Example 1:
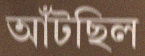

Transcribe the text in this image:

আঁটছিল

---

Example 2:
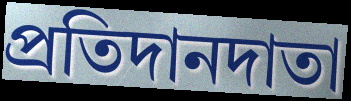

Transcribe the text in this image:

প্রতিদানদাতা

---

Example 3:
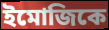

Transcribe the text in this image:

ইমোজিকে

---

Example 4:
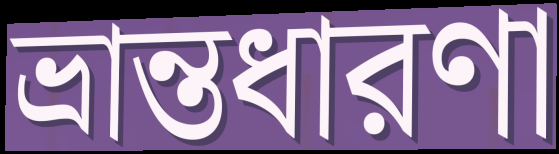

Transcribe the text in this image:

ভ্রান্তধারণা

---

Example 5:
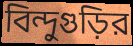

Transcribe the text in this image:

বিন্দুগুড়ির